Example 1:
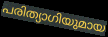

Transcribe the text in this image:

പരിത്യാഗിയുമായ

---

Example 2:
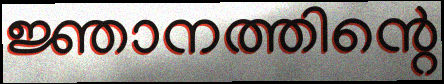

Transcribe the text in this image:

ജ്ഞാനത്തിന്റെ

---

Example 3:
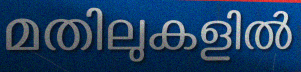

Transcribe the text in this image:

മതിലുകളിൽ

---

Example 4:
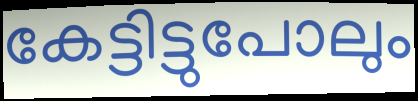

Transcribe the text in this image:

കേട്ടിട്ടുപോലും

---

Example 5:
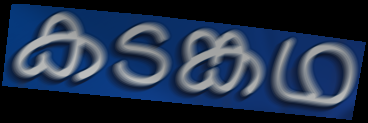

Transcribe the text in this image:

കടങ്കഥ